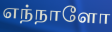
எந்நாளோ